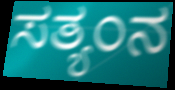
ಸತ್ಯಂನ